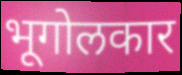
भूगोलकार